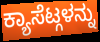
ಕ್ಯಾಸೆಟ್ಗಳನ್ನು